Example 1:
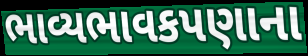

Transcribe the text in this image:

ભાવ્યભાવકપણાના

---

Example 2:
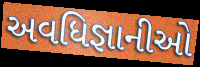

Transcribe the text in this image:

અવધિજ્ઞાનીઓ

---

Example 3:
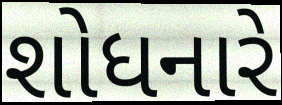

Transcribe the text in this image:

શોધનારે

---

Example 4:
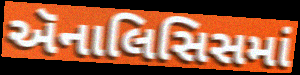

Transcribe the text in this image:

ઍનાલિસિસમાં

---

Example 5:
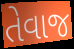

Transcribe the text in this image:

તેવાજ